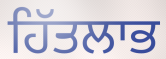
ਹਿੱਤਲਾਭ